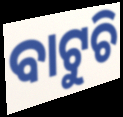
ବାଟୁଚି